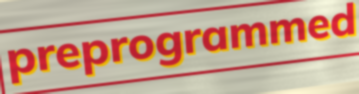
preprogrammed